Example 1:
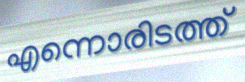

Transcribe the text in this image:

എന്നൊരിടത്ത്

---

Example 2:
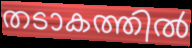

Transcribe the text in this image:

തടാകത്തിൽ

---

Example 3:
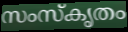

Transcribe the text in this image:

സംസ്കൃതം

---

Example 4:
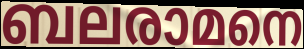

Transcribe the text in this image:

ബലരാമനെ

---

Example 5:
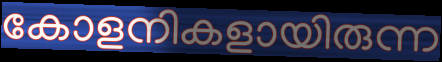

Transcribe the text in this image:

കോളനികളായിരുന്ന